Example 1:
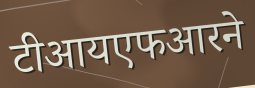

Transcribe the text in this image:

टीआयएफआरने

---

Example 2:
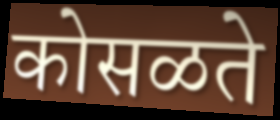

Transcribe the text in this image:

कोसळते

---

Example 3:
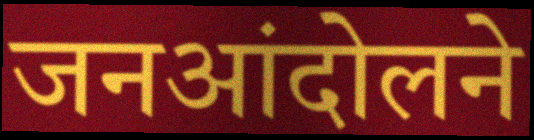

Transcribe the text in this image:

जनआंदोलने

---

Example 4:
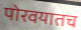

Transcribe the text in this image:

पोरवयातच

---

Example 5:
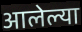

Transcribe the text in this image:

आलेल्या